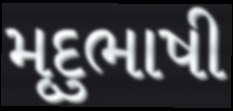
મૃદુભાષી